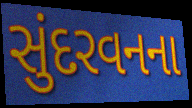
સુંદરવનના